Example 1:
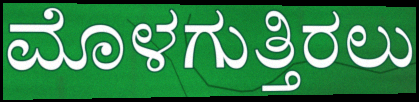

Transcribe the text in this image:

ಮೊಳಗುತ್ತಿರಲು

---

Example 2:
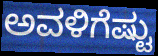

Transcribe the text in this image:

ಅವಳಿಗೆಷ್ಟು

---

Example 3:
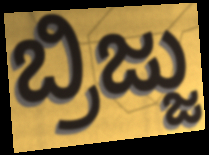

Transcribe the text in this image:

ಬ್ರಿಜ್ಜು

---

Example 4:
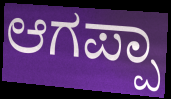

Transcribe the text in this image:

ಆಗಪ್ಪಾ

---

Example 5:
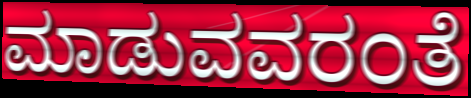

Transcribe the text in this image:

ಮಾಡುವವರಂತೆ